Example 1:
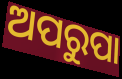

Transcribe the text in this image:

ଅପରୁପା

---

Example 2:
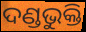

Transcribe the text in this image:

ଦଣ୍ଡଭୁକ୍ତି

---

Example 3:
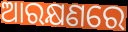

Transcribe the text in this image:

ଆରକ୍ଷଣରେ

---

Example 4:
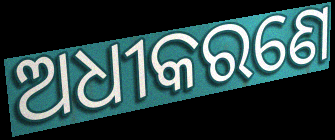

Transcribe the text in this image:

ଅଧୀକରଣେ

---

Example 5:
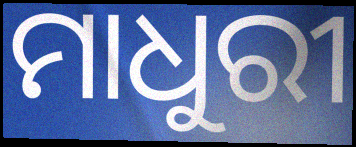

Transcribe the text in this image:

ମାଧୁରୀ